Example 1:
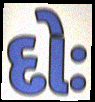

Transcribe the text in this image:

દોઃ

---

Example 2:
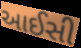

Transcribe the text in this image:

આઈસી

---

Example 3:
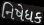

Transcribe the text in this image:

નિષેધક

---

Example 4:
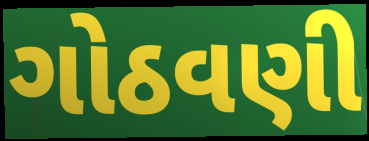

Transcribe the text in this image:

ગોઠવણી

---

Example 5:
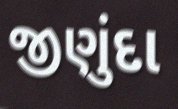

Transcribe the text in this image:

જીણુંદા